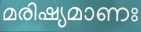
മരിഷ്യമാണഃ